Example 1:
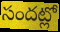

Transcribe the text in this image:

సందట్లో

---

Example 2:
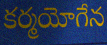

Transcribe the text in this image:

కర్మయోగేన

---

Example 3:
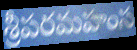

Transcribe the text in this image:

శ్రీపరమహంస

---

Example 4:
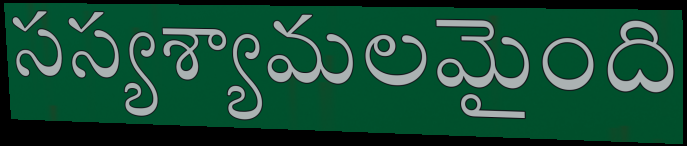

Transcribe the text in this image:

సస్యశ్యామలమైంది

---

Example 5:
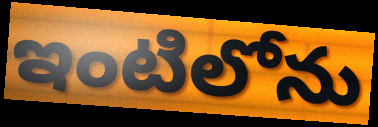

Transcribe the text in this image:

ఇంటిలోను